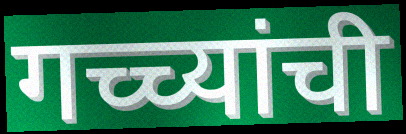
गच्च्यांची